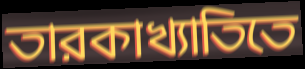
তারকাখ্যাতিতে